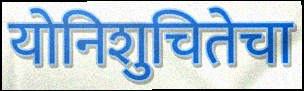
योनिशुचितेचा